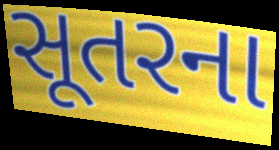
સૂતરના